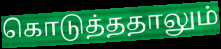
கொடுத்ததாலும்